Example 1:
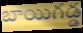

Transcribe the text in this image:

బాయిగడ్డ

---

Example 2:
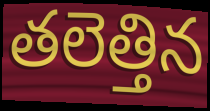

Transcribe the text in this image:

తలెత్తిన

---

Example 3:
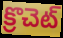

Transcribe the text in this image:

క్రొచెట్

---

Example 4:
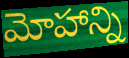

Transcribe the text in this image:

మోహాన్ని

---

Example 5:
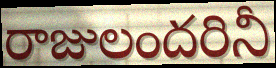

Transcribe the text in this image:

రాజులందరినీ